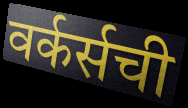
वर्कर्सची